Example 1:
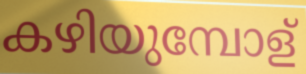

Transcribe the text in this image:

കഴിയുമ്പോള്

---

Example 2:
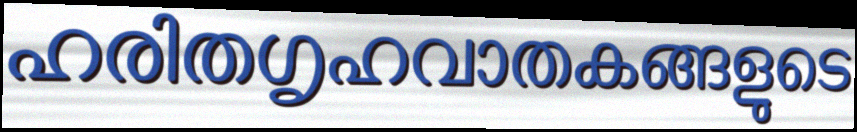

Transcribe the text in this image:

ഹരിതഗൃഹവാതകങ്ങളുടെ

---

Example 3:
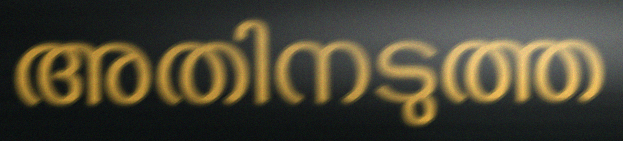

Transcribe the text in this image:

അതിനടുത്ത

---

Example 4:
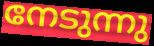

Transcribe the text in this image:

നേടുന്നു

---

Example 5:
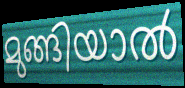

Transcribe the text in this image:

മുങ്ങിയാൽ